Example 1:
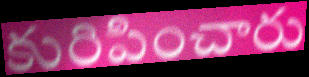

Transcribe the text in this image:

కురిపించారు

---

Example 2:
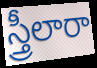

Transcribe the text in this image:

స్త్రీలారా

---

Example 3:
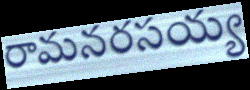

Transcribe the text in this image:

రామనరసయ్య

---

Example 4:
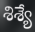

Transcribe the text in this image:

శిశ్యే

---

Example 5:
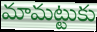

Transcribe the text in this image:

మామట్టుకు